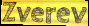
Zverev